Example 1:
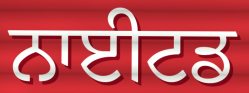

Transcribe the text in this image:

ਨਾਈਟਡ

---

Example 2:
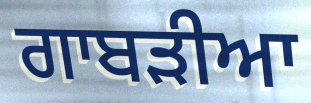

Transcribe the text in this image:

ਗਾਬੜੀਆ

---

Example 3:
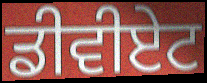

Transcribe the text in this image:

ਡੀਵੀਏਟ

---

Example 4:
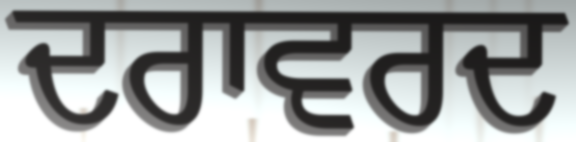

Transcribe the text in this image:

ਦਰਾਵਰਦ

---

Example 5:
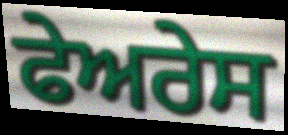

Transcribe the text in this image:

ਫੇਅਰੇਸ